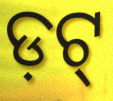
ଡ଼ଟ୍